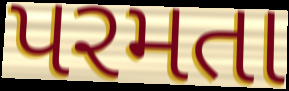
પરમતા